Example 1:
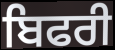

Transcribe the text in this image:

ਬਿਫਰੀ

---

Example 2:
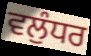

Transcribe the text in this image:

ਵਲੁੰਧਰ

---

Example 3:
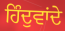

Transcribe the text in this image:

ਹਿੰਦੁਵਾਂਦੇ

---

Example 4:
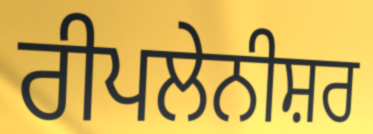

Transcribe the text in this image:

ਰੀਪਲੇਨੀਸ਼ਰ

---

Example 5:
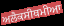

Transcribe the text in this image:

ਅਲੈਕਸੀਥਮੀਆ